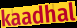
kaadhal